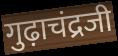
गुढ़ाचंद्रजी